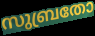
സുബ്രതോ